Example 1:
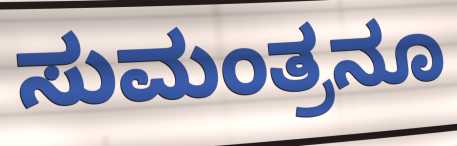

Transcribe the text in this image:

ಸುಮಂತ್ರನೂ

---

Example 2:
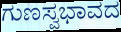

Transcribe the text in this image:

ಗುಣಸ್ವಭಾವದ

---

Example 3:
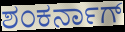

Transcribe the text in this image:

ಶಂಕರ್ನಾಗ್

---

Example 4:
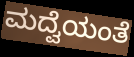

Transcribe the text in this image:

ಮದ್ವೆಯಂತೆ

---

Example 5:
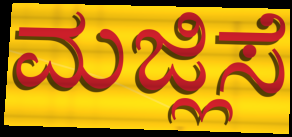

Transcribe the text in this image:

ಮಜ್ಲಿಸೆ